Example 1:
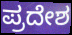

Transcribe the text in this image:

ಪ್ರದೇಶ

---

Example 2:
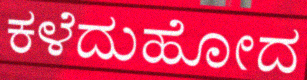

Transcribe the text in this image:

ಕಳೆದುಹೋದ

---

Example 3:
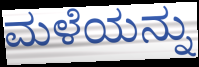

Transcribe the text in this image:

ಮಳೆಯನ್ನು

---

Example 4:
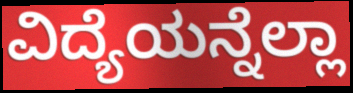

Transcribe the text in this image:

ವಿದ್ಯೆಯನ್ನೆಲ್ಲಾ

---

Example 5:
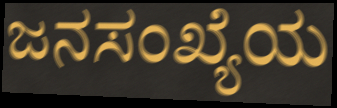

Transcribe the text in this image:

ಜನಸಂಖ್ಯೆಯ